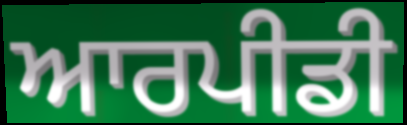
ਆਰਪੀਡੀ